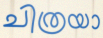
ചിത്രയാ